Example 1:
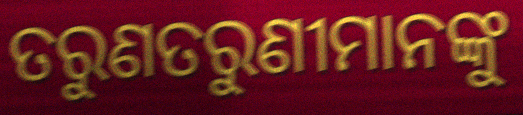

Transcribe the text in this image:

ତରୁଣତରୁଣୀମାନଙ୍କୁ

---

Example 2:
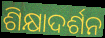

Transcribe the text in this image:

ଶିକ୍ଷାଦର୍ଶନ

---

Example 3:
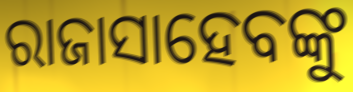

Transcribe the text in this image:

ରାଜାସାହେବଙ୍କୁ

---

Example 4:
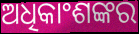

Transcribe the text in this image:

ଅଧିକାଂଶଙ୍କର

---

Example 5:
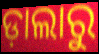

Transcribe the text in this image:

ଡ଼ାଲାରୁ